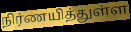
நிர்ணயித்துள்ள